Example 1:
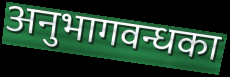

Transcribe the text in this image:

अनुभागवन्धका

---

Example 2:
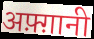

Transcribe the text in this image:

अफ़्ग़ानी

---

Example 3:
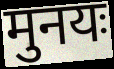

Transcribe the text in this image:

मुनयः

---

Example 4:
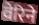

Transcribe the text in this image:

वेरिने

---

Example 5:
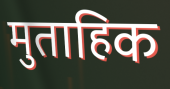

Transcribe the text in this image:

मुताहिक